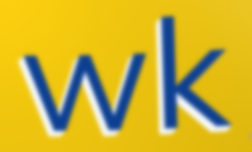
wk